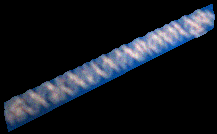
ഭാവാധാനത്തോളം